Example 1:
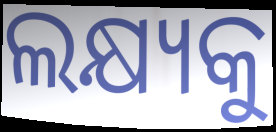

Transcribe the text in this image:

ଲକ୍ଷ୍ୟକୁ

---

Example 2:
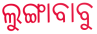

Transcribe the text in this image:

ଲୁଙ୍ଗାବାବୁ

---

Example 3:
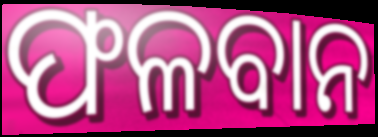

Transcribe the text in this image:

ଫଳବାନ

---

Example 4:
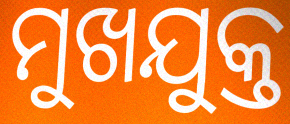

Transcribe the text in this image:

ମୁଖଯୁକ୍ତ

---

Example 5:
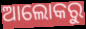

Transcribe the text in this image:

ଆଲୋକରୁ